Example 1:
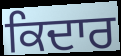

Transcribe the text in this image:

ਕਿਦਾਰ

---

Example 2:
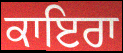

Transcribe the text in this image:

ਕਾਇਰਾ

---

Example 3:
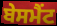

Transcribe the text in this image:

ਬੇਸਮੈਂਟ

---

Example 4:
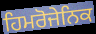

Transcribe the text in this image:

ਹਿਮਰੋਜੇਨਿਕ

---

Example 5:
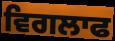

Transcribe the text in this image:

ਵਿਗਲਾਫ